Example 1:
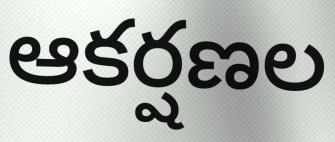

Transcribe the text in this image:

ఆకర్షణల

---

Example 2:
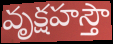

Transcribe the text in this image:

వృక్షహస్తౌ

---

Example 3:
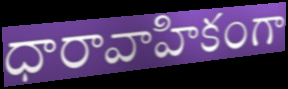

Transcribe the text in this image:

ధారావాహికంగా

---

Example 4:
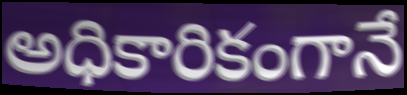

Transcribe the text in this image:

అధికారికంగానే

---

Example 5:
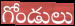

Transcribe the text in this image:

గోండులు